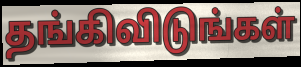
தங்கிவிடுங்கள்